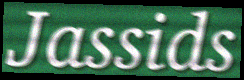
Jassids